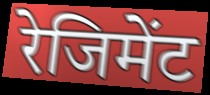
रेजिमेंट